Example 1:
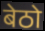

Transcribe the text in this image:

बेठो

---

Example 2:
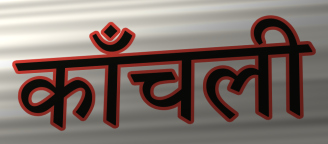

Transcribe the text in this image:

काँचली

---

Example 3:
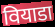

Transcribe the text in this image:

वियाडा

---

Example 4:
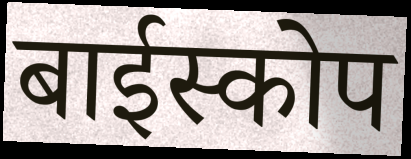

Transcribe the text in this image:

बाईस्कोप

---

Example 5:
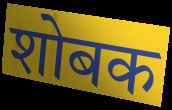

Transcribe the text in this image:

शोबक